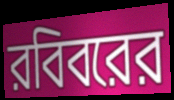
রবিবরের